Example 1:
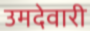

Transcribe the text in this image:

उमदेवारी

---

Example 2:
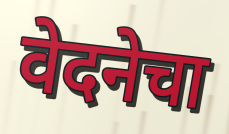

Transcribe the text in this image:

वेदनेचा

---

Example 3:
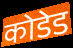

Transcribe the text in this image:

कोडेड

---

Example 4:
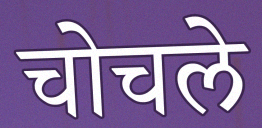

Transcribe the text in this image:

चोचले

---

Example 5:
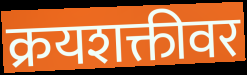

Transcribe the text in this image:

क्रयशक्तीवर